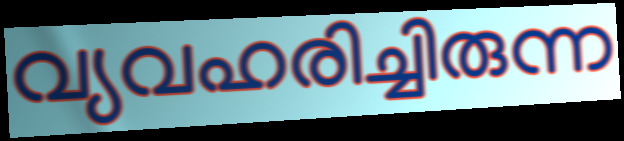
വ്യവഹരിച്ചിരുന്ന